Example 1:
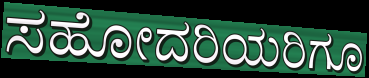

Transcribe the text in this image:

ಸಹೋದರಿಯರಿಗೂ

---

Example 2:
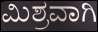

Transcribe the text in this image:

ಮಿಶ್ರವಾಗಿ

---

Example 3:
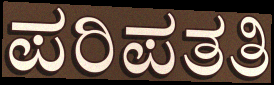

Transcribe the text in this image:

ಪರಿಪತತಿ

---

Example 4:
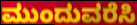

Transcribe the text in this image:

ಮುಂದುವರೆಸಿ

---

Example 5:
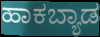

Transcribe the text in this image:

ಹಾಕಬ್ಯಾಡ